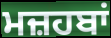
ਮਜ਼ਹਬਾਂ